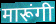
मारूंगी